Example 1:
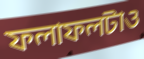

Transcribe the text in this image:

ফলাফলটাও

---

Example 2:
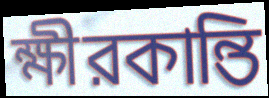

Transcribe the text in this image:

ক্ষীরকান্তি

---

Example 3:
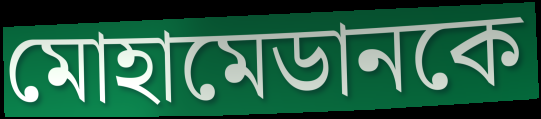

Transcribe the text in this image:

মোহামেডানকে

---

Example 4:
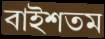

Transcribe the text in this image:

বাইশতম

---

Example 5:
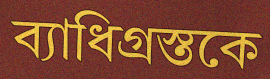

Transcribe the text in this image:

ব্যাধিগ্রস্তকে